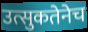
उत्सुकतेनेच